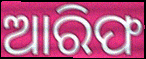
ଆରିଫ